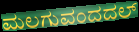
ಮಲಗುವಂದದಲ್